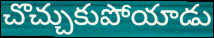
చొచ్చుకుపోయాడు